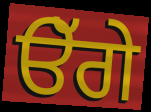
ੳੱਗੇ